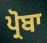
ਪ੍ਰੋਬਾ